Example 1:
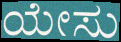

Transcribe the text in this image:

ಯೇಸು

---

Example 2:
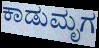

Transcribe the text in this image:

ಕಾಡುಮೃಗ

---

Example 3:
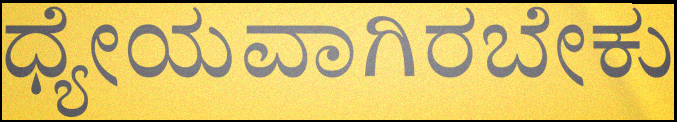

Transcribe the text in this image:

ಧ್ಯೇಯವಾಗಿರಬೇಕು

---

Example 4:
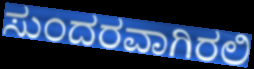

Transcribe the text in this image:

ಸುಂದರವಾಗಿರಲಿ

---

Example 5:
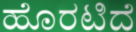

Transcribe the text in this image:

ಹೊರಟಿದೆ